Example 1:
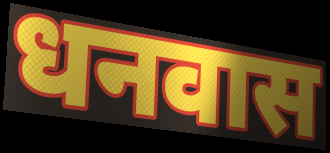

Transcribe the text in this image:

धनवास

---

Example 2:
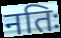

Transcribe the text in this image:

नतिः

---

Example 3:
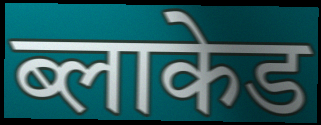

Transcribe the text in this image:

ब्लाकेड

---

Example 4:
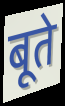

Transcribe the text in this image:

बूते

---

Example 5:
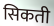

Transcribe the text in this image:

सिकती